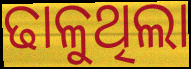
ଢାଳୁଥିଲା